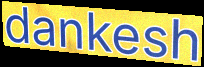
dankesh